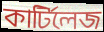
কার্টিলেজ